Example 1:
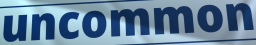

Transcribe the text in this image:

uncommon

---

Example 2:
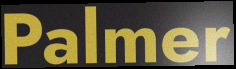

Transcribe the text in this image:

Palmer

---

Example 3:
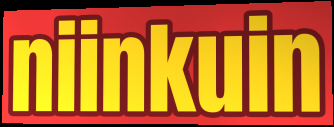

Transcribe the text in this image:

niinkuin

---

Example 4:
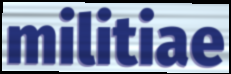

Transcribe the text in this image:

militiae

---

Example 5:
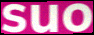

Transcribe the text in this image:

suo